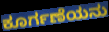
ಕೂರ್ಗಣೆಯನು